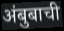
अंबुबाची